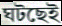
ঘটছেই